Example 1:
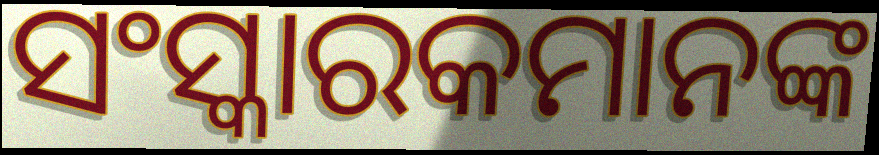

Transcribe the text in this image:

ସଂସ୍କାରକମାନଙ୍କ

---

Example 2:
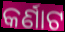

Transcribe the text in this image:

କର୍ଣାଟ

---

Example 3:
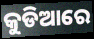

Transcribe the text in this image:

କୁଡିଆରେ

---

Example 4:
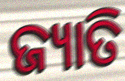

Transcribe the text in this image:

ଜ୍ୟାତି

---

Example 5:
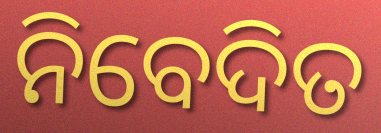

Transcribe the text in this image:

ନିବେଦିତ